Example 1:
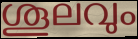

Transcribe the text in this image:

ശൂലവും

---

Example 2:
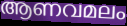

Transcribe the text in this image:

ആണവമലം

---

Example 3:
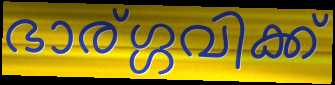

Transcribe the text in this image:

ഭാര്ഗ്ഗവിക്ക്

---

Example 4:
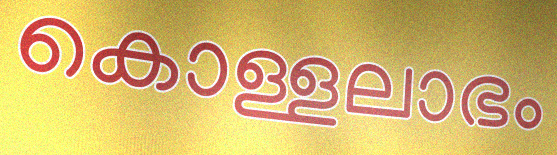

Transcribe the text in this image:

കൊള്ളലാഭം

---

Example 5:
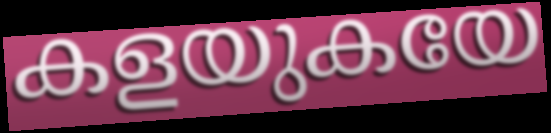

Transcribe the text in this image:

കളയുകയേ